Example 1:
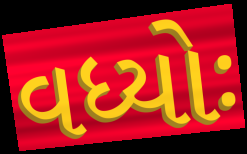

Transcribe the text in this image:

વધ્યોઃ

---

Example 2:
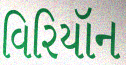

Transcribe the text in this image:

વિરિયૉન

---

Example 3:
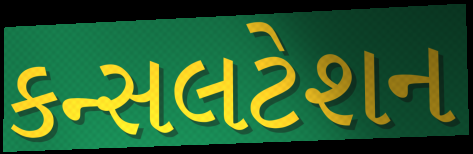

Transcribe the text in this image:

કન્સલટેશન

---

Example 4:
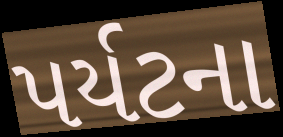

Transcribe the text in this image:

પર્યટના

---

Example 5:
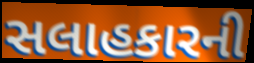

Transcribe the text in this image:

સલાહકારની